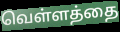
வெள்ளத்தை